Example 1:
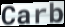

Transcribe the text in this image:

Carb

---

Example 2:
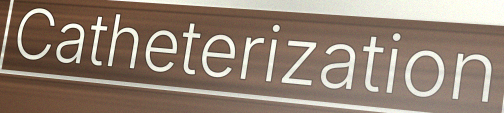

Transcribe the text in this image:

Catheterization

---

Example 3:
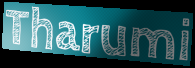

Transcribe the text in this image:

Tharumi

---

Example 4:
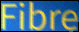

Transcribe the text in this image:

Fibre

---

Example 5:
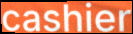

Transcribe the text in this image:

cashier